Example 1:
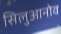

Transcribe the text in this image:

सिलुआनोव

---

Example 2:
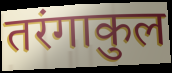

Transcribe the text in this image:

तरंगाकुल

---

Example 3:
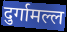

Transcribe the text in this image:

दुर्गामल्ल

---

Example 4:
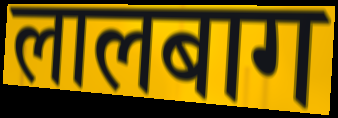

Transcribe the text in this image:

लालबाग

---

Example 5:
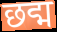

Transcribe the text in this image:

छद्म